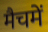
मैचमें